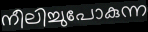
നീലിച്ചുപോകുന്ന